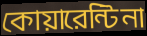
কোয়ারেন্টিনা